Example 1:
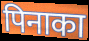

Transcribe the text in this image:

पिनाका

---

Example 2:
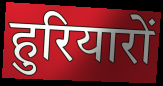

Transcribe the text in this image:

हुरियारों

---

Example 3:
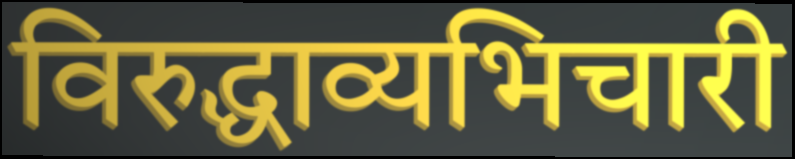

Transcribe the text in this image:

विरुद्धाव्यभिचारी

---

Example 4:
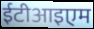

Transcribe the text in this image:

ईटीआइएम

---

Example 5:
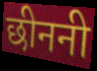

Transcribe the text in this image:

छीननी